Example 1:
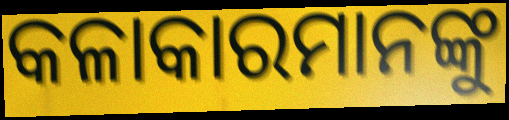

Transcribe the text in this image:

କଳାକାରମାନଙ୍କୁ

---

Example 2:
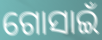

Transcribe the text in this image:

ଗୋସାଇଁ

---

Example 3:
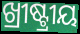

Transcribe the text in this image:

ଖ୍ରୀଷ୍ଟ୍ରୀୟ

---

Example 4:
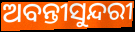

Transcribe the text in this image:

ଅବନ୍ତୀସୁନ୍ଦରୀ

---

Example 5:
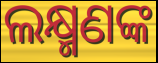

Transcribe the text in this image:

ଲକ୍ଷ୍ମଣଙ୍କ